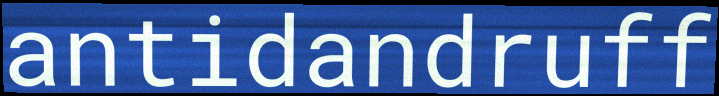
antidandruff